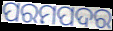
ପରମପଦର